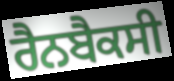
ਰੈਨਬੈਕਸੀ